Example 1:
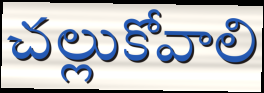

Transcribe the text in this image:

చల్లుకోవాలి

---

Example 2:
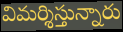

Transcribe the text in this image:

విమర్శిస్తున్నారు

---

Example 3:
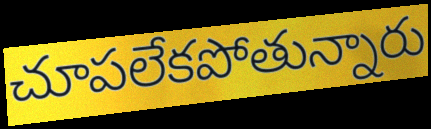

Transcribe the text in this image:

చూపలేకపోతున్నారు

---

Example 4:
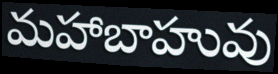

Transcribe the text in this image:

మహాబాహువు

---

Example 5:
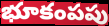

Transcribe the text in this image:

భూకంపపు